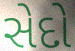
સેદો